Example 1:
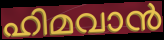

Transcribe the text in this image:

ഹിമവാൻ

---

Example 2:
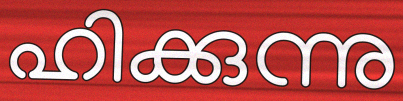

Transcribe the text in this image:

ഹിക്കുന്നു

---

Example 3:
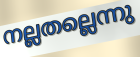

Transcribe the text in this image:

നല്ലതല്ലെന്നു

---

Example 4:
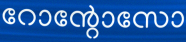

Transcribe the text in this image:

റോന്റോസോ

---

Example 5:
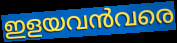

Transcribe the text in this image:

ഇളയവൻവരെ